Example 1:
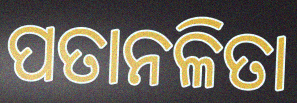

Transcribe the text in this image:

ପତାନଳିତା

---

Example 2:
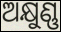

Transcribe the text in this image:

ଅକ୍ଷୁଣ୍ଣ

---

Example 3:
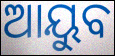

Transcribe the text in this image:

ଆୟୁବ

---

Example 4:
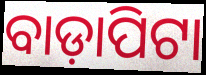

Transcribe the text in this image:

ବାଡ଼ାପିଟା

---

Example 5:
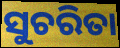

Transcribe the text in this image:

ସୁଚରିତା